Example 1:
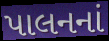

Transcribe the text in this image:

પાલનનાં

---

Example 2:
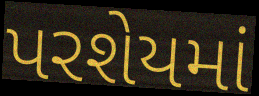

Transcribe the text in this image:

પરશેયમાં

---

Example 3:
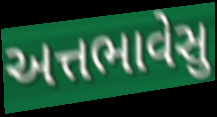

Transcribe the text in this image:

અત્તભાવેસુ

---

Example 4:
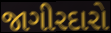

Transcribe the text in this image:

જાગીરદારો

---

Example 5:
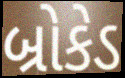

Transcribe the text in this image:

બ્રોકેડ